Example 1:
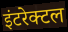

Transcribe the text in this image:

इंटरेक्टल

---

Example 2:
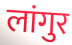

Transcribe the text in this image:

लांगुर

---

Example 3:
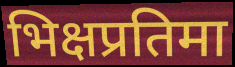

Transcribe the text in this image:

भिक्षप्रतिमा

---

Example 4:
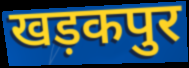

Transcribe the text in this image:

खड़कपुर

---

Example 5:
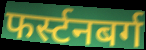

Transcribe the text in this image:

फर्स्टनबर्ग